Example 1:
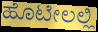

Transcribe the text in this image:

ಹೊಟೇಲಲ್ಲಿ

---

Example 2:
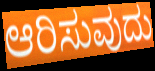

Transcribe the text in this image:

ಆರಿಸುವುದು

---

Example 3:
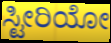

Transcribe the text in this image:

ಸ್ಟೀರಿಯೋ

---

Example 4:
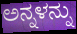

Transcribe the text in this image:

ಅನ್ನಳನ್ನು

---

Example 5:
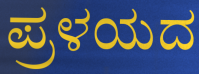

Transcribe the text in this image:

ಪ್ರಳಯದ